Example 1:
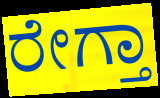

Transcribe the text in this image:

ರೇಗ್ತಾ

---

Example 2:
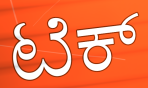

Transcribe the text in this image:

ಟೆಕ್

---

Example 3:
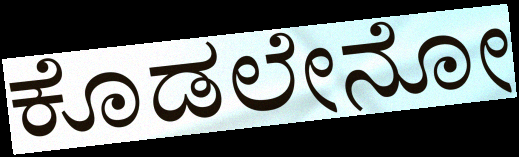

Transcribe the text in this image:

ಕೊಡಲೇನೋ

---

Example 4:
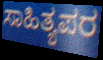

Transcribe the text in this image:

ಸಾಹಿತ್ಯಪರ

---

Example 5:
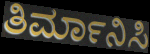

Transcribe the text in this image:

ತಿರ್ಮಾನಿಸಿ